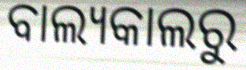
ବାଲ୍ୟକାଲରୁ